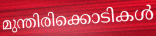
മുന്തിരിക്കൊടികൾ